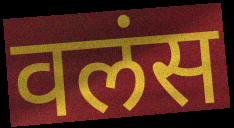
वलंस